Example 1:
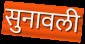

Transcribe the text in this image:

सुनावली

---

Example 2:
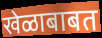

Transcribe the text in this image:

खेळाबाबत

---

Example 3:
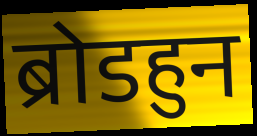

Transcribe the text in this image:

ब्रोडहुन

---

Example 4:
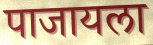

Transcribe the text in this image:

पाजायला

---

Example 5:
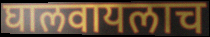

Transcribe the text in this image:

घालवायलाच